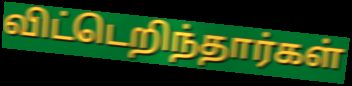
விட்டெறிந்தார்கள்